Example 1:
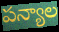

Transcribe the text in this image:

పన్యాల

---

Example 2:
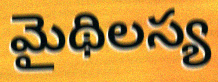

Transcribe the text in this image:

మైథిలస్య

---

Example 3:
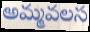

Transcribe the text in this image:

అమ్మవలస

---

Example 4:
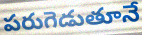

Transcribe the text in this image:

పరుగెడుతూనే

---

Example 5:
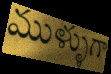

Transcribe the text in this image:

ముళ్ళుగా